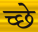
च्छे